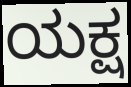
ಯಕ್ಷ